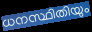
ധനസ്ഥിതിയും